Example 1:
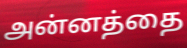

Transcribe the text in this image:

அன்னத்தை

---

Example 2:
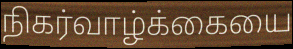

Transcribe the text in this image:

நிகர்வாழ்க்கையை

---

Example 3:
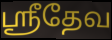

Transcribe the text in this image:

ஸ்ரீதேவ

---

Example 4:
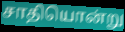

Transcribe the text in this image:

சாதியொன்று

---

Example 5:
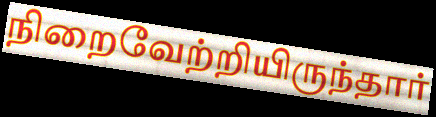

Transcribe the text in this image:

நிறைவேற்றியிருந்தார்